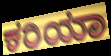
ಕರಿಯಾ